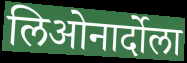
लिओनार्दोला